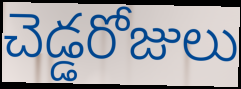
చెడ్డరోజులు